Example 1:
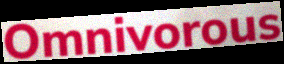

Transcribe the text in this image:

Omnivorous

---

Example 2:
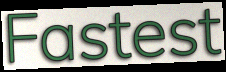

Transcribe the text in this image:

Fastest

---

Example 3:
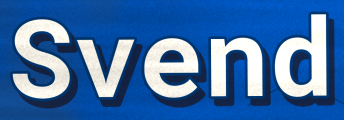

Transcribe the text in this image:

Svend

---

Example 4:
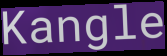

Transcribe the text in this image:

Kangle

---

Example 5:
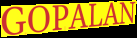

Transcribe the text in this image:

GOPALAN